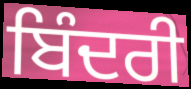
ਬਿੰਦਰੀ